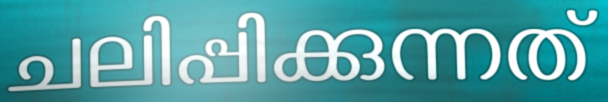
ചലിപ്പിക്കുന്നത്